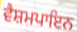
ਵੈਸ਼ਮਪਾਇਨ